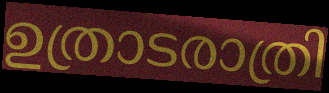
ഉത്രാടരാത്രി